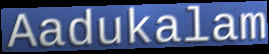
Aadukalam